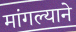
मांगल्याने